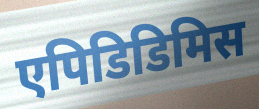
एपिडिडिमिस